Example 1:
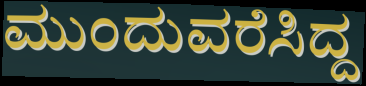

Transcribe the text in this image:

ಮುಂದುವರೆಸಿದ್ದ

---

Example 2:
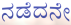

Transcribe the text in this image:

ನಡೆದನೇ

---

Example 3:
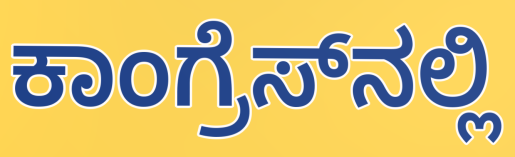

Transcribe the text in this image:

ಕಾಂಗ್ರೆಸ್‌ನಲ್ಲಿ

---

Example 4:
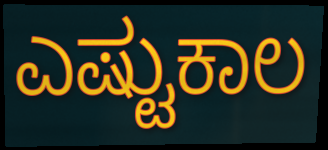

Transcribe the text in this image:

ಎಷ್ಟುಕಾಲ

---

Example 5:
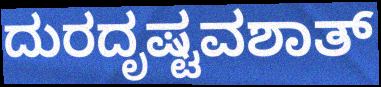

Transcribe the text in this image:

ದುರದೃಷ್ಟವಶಾತ್